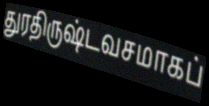
துரதிருஷ்டவசமாகப்